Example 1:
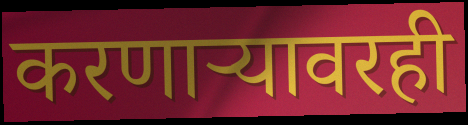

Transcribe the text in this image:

करणाऱ्यावरही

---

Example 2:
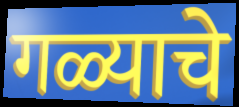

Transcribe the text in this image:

गळ्याचे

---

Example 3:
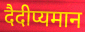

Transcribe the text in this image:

दैदीप्यमान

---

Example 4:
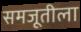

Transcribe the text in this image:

समजूतीला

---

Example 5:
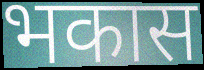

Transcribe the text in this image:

भकास